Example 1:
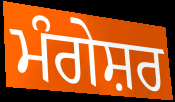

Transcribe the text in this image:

ਮੰਗੇਸ਼ਰ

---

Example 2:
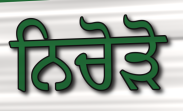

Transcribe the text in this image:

ਨਿਚੋੜੋ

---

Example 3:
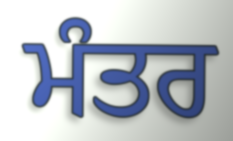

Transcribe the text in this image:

ਮੰਤਰ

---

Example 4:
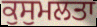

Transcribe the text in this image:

ਕੁਸੁਮਲਤਾ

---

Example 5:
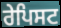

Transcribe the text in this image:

ਰੇਪਿਸਟ